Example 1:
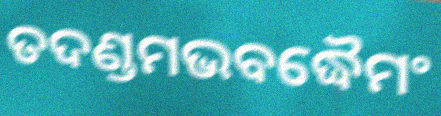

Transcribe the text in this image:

ତଦଣ୍ଡମଭବଦ୍ଧୈମଂ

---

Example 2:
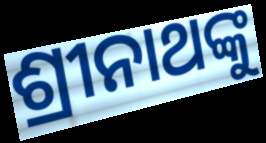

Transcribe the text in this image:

ଶ୍ରୀନାଥଙ୍କୁ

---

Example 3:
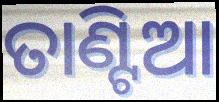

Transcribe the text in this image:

ତାଣ୍ଟିଆ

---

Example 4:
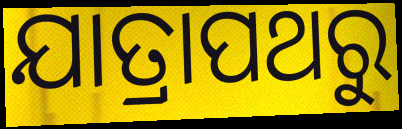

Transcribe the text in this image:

ଯାତ୍ରାପଥରୁ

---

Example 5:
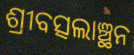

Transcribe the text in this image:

ଶ୍ରୀବତ୍ସଲାଞ୍ଛନ